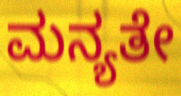
ಮನ್ಯತೇ